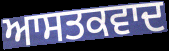
ਆਸਤਕਵਾਦ